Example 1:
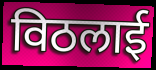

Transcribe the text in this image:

विठलाई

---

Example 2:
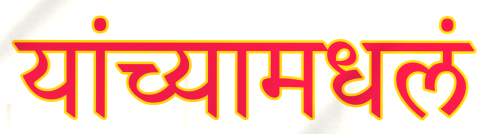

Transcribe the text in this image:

यांच्यामधलं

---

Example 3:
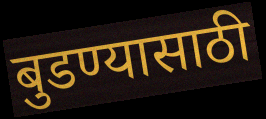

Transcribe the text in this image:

बुडण्यासाठी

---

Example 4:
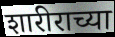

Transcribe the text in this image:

शारीराच्या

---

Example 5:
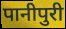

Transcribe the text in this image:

पानीपुरी